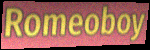
Romeoboy